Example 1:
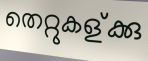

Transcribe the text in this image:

തെറ്റുകള്ക്കു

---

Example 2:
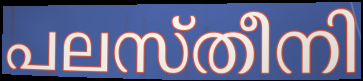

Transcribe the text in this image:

പലസ്തീനി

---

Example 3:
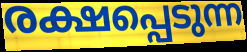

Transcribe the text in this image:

രക്ഷപ്പെടുന്ന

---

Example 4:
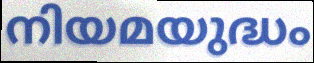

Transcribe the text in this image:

നിയമയുദ്ധം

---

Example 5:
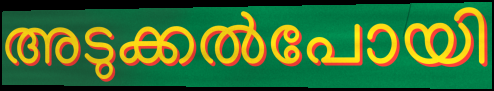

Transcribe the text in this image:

അടുക്കൽപോയി